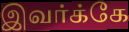
இவர்க்கே